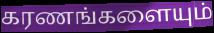
கரணங்களையும்